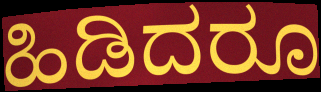
ಹಿಡಿದರೂ